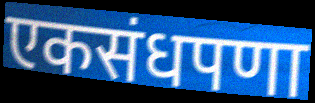
एकसंधपणा